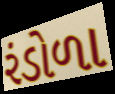
રંડોળા